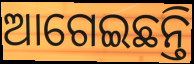
ଆଗେଇଛନ୍ତି